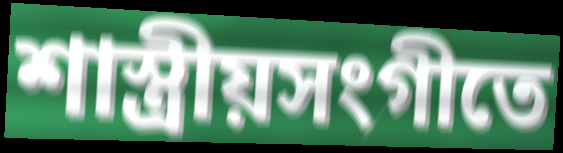
শাস্ত্রীয়সংগীতে